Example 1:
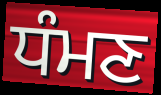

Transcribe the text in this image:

ਧੰਮਣ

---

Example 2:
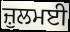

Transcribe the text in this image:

ਜ਼ੁਲਮਈ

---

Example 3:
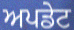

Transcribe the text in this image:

ਅਪਡੇਟ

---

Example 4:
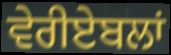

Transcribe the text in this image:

ਵੇਰੀਏਬਲਾਂ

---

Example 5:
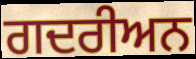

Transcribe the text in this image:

ਗਦਰੀਅਨ